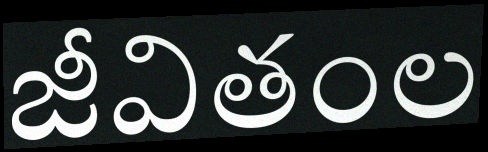
జీవితంల